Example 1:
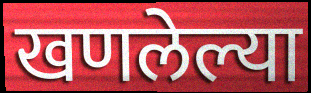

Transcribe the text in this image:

खणलेल्या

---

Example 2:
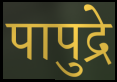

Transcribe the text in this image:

पापुद्रे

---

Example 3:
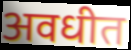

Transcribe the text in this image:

अवधीत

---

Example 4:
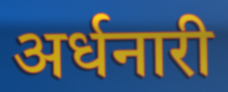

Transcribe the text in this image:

अर्धनारी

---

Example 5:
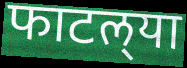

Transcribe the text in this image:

फाटल्या